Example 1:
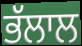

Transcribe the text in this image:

ਭੱਲਾਲ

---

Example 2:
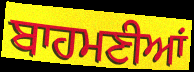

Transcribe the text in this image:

ਬਾਹਮਣੀਆਂ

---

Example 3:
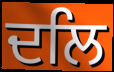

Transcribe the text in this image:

ਦਲਿ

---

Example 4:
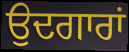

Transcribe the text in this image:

ਉਦਗਾਰਾਂ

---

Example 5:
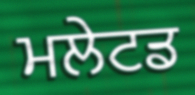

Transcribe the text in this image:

ਮਲੇਟਡ